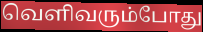
வெளிவரும்போது